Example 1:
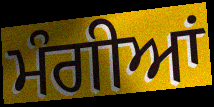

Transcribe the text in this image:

ਮੰਗੀਆਂ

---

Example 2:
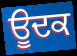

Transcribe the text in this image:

ਊਦਕ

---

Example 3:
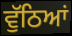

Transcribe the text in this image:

ਵੁੱਠਿਆਂ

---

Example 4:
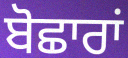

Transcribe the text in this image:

ਬੋਛਾਰਾਂ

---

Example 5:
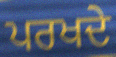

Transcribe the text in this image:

ਪਰਖਦੇ